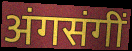
अंगसंगीं